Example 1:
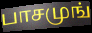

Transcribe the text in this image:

பாசமுங்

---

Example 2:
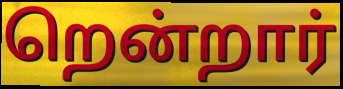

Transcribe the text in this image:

றென்றார்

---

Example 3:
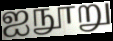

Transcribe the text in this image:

ஐநூறு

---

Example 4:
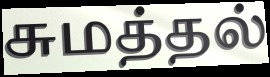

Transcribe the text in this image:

சுமத்தல்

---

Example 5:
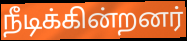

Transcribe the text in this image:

நீடிக்கின்றனர்